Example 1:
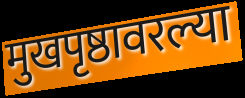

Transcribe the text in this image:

मुखपृष्ठावरल्या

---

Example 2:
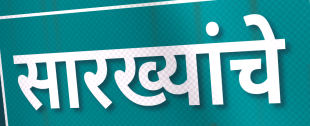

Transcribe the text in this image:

सारख्यांचे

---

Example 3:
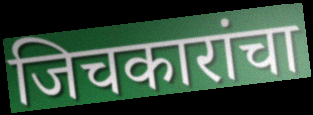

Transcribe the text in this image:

जिचकारांचा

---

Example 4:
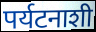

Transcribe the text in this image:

पर्यटनाशी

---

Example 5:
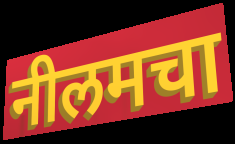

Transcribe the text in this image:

नीलमचा